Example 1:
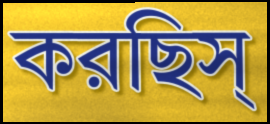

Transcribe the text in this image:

করছিস্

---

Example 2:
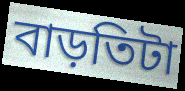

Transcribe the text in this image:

বাড়তিটা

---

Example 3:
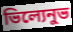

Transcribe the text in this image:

ভিল্যেনুভ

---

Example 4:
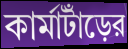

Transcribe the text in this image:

কার্মাটাঁড়ের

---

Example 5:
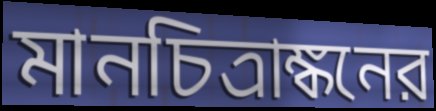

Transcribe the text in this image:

মানচিত্রাঙ্কনের